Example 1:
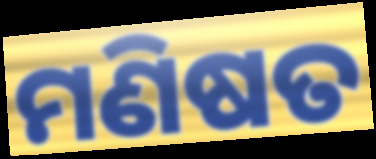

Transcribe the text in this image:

ମଣିଷତ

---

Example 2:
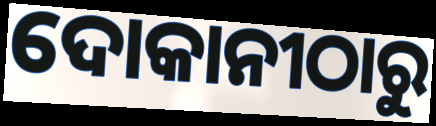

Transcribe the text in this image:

ଦୋକାନୀଠାରୁ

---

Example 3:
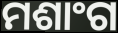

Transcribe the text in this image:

ମଶାଂଗ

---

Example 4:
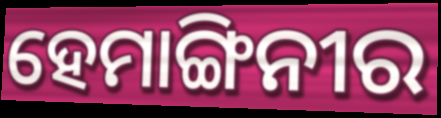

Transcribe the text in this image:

ହେମାଙ୍ଗିନୀର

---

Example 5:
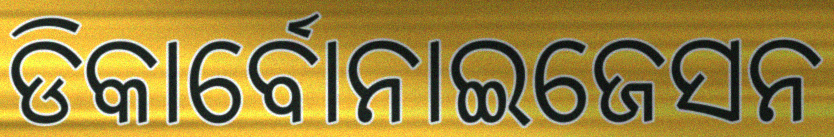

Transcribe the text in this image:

ଡିକାର୍ବୋନାଇଜେସନ